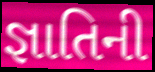
જ્ઞાતિની